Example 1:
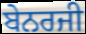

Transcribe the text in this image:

ਬੇਨਰਜੀ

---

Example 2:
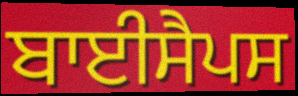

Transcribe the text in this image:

ਬਾਈਸੈਪਸ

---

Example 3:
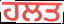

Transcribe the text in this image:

ਹਲਤ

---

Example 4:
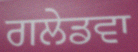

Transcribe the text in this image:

ਗਲੇਡਵਾ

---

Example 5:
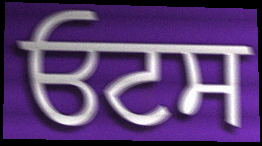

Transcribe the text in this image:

ਓਟਸ